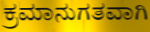
ಕ್ರಮಾನುಗತವಾಗಿ